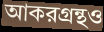
আকরগ্রন্থও